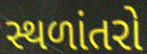
સ્થળાંતરો